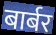
बार्बर